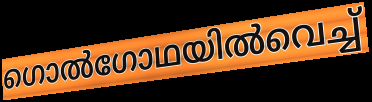
ഗൊൽഗോഥയിൽവെച്ച്